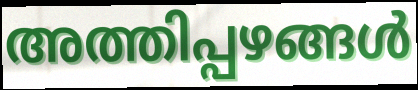
അത്തിപ്പഴങ്ങൾ